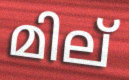
മില്